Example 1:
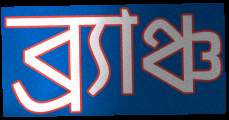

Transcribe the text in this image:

ব্র্যাঞ্চ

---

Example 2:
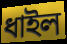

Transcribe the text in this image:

ধাইল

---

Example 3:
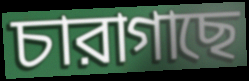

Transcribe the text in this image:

চারাগাছে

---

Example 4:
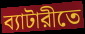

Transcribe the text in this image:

ব্যাটারীতে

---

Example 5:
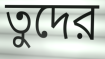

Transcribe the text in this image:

তুদের